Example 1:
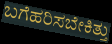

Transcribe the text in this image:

ಬಗೆಹರಿಸಬೇಕಿತ್ತು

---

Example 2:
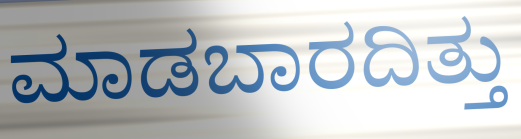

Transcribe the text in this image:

ಮಾಡಬಾರದಿತ್ತು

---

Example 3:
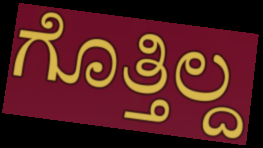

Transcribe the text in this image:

ಗೊತ್ತಿಲ್ದ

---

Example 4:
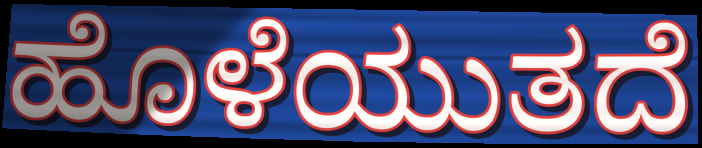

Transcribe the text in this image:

ಹೊಳೆಯುತದೆ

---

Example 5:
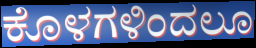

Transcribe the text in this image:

ಕೊಳಗಳಿಂದಲೂ